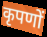
कृपणों